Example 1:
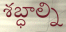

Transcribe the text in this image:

శబ్ధాల్ని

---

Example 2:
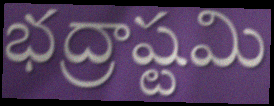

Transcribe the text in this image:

భద్రాష్టమి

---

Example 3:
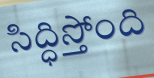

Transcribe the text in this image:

సిద్ధిస్తోంది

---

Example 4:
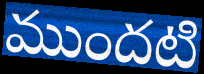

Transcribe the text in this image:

ముందటి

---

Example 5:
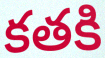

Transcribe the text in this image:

కతకి